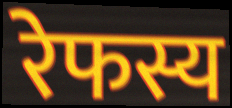
रेफस्य